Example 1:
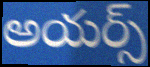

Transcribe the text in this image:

అయర్స్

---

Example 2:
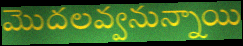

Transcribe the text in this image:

మొదలవ్వనున్నాయి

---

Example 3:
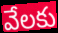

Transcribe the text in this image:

వేలకు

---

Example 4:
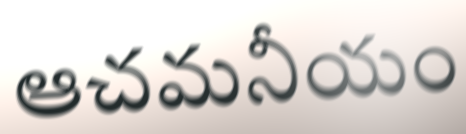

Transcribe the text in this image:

ఆచమనీయం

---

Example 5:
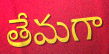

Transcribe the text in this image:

తేమగా